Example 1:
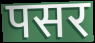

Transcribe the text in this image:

पसर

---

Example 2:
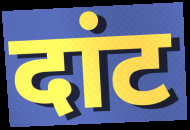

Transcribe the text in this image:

दांट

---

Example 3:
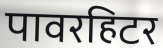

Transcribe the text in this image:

पावरहिटर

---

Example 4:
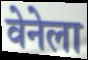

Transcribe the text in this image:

वेनेला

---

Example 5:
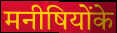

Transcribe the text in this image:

मनीषियोंके